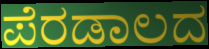
ಪೆರಡಾಲದ